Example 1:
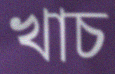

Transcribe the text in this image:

খাচ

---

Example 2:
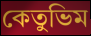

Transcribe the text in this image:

কেতুভিম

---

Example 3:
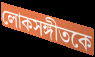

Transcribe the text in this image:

লোকসঙ্গীতকে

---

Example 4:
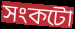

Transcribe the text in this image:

সংকটো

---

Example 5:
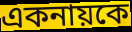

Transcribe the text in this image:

একনায়কে